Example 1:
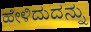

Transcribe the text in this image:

ಹೇಳಿದುದನ್ನು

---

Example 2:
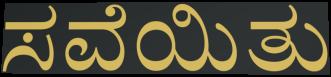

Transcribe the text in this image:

ಸವೆಯಿತು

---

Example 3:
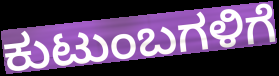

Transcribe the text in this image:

ಕುಟುಂಬಗಳಿಗೆ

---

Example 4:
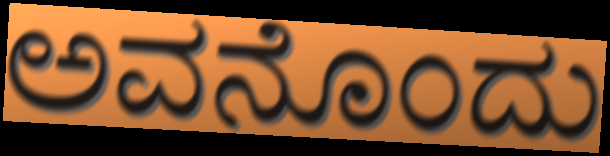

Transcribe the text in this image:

ಅವನೊಂದು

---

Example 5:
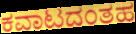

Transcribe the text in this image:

ಕವಾಟದಂತಹ